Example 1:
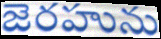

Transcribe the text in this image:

జెరహును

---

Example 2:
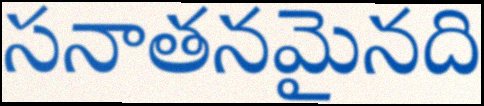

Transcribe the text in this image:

సనాతనమైనది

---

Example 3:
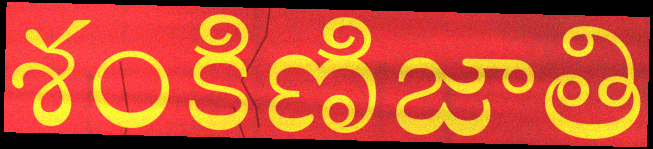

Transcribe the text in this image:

శంకిణిజాతి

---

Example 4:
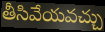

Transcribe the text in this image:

తీసివేయవచ్చు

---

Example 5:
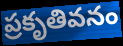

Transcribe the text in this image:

ప్రకృతివనం